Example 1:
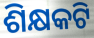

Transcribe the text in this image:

ଶିକ୍ଷକଟି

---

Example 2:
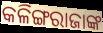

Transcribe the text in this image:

କଳିଙ୍ଗରାଜାଙ୍କ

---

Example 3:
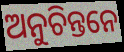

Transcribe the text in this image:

ଅନୁଚିନ୍ତନେ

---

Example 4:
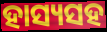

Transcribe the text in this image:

ହାସ୍ୟସହ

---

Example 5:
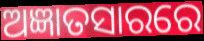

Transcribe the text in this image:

ଅଜ୍ଞାତସାରରେ